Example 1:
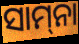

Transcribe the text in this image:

ସାମ୍‌ନା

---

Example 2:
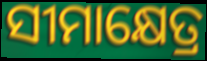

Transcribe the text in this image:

ସୀମାକ୍ଷେତ୍ର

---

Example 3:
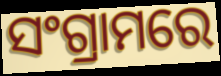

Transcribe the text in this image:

ସଂଗ୍ରାମରେ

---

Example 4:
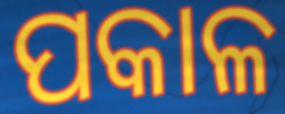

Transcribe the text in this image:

ପକାଳ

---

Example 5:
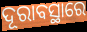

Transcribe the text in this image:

ଦୂରାବସ୍ଥାରେ